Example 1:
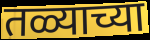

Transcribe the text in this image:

तळ्याच्या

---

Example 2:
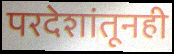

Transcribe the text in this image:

परदेशांतूनही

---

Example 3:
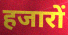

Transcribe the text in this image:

हजारों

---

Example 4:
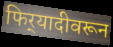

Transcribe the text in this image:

फिर्यादीवरून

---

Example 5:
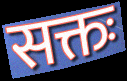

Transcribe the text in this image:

सक्तः